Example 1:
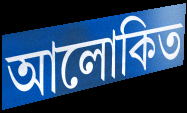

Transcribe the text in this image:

আলোকিত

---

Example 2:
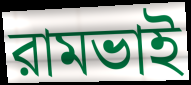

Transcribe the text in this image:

রামভাই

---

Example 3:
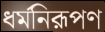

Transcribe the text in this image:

ধর্মনিরূপণ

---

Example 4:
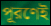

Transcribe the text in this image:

পূরণেই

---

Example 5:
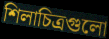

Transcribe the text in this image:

শিলাচিত্রগুলো